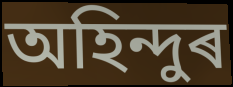
অহিন্দুৰ